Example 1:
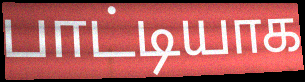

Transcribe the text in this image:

பாட்டியாக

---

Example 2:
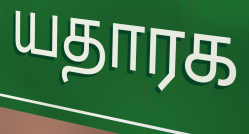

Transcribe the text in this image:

யதாரக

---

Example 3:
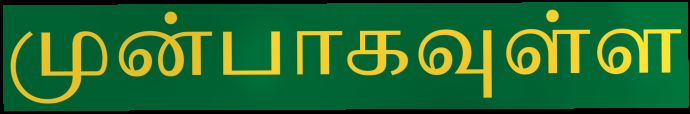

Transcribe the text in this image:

முன்பாகவுள்ள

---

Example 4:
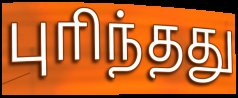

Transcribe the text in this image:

புரிந்தது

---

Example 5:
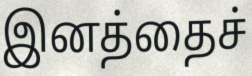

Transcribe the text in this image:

இனத்தைச்